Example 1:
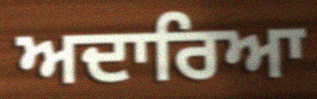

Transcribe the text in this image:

ਅਦਾਰਿਆ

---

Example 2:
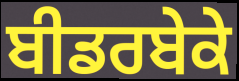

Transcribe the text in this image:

ਬੀਡਰਬੇਕੇ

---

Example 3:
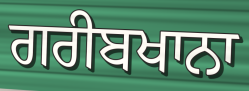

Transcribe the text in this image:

ਗਰੀਬਖਾਨਾ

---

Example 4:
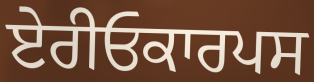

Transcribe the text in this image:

ਏਰੀਓਕਾਰਪਸ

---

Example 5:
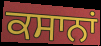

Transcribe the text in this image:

ਕਸਾਨਾਂ